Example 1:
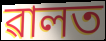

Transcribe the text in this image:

ৱালত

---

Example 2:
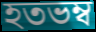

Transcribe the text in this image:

হতভম্ব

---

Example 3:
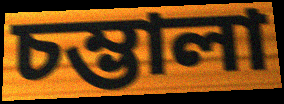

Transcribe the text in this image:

চম্ভালা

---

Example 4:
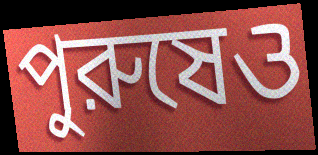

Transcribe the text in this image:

পুৰুষেও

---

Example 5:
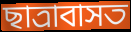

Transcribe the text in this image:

ছাত্ৰাবাসত